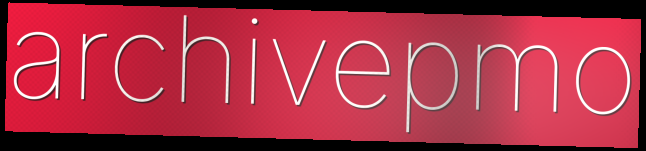
archivepmo